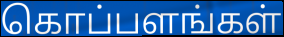
கொப்பளங்கள்